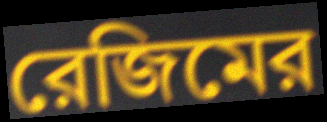
রেজিমের